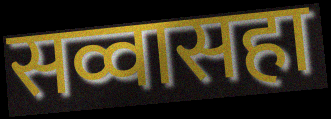
सव्वासहा